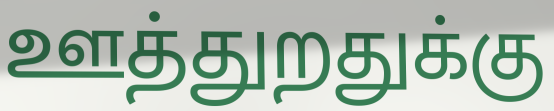
ஊத்துறதுக்கு